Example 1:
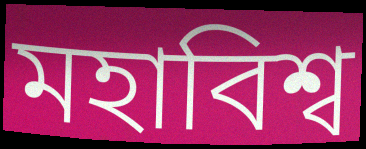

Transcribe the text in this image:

মহাবিশ্ব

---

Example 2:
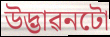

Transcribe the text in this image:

উদ্ভাৱনটো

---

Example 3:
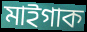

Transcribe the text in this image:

মাইগাক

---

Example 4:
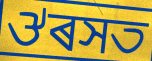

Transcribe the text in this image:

ঔৰসত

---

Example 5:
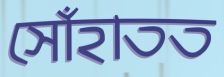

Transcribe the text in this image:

সোঁহাতত